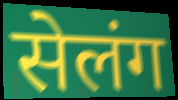
सेलंग